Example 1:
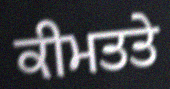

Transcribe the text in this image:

ਕੀਮਤਤੇ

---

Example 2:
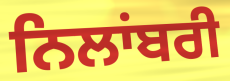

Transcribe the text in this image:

ਨਿਲਾਂਬਰੀ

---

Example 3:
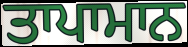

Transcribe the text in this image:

ਤਾਪਾਮਾਨ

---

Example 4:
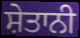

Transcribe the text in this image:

ਸ਼ੇਤਾਨੀ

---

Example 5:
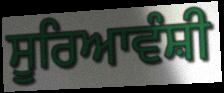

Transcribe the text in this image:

ਸੂਰਿਆਵੰਸ਼ੀ